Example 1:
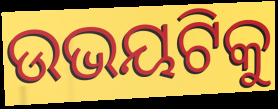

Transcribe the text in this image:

ଉଭୟଟିକୁ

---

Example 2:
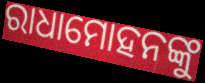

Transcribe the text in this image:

ରାଧାମୋହନଙ୍କୁ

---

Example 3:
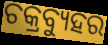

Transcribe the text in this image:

ଚକ୍ରବ୍ୟୁହର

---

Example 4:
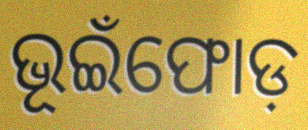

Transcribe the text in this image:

ଭୂଇଁଫୋଡ଼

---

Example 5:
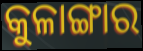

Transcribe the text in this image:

କୁଳାଙ୍ଗାର